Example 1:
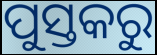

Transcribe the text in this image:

ପୁସ୍ତକରୁ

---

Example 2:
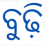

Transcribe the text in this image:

ବୁଢ଼ି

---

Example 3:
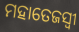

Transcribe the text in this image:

ମହାତେଜସ୍ୱୀ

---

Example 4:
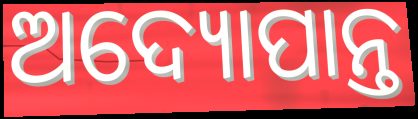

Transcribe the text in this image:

ଅଦ୍ୟୋପାନ୍ତ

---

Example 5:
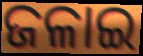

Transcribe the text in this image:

ଜଳାଇ